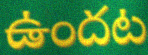
ఉందట